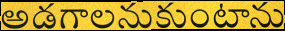
అడగాలనుకుంటాను